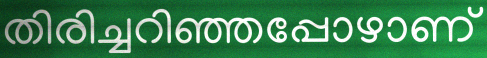
തിരിച്ചറിഞ്ഞപ്പോഴാണ്